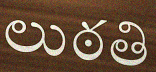
లుఠతి